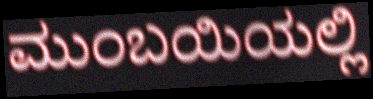
ಮುಂಬಯಿಯಲ್ಲಿ